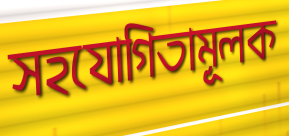
সহযোগিতামূলক